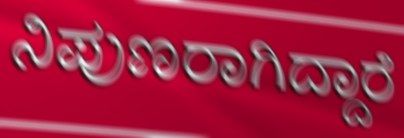
ನಿಪುಣರಾಗಿದ್ದಾರೆ